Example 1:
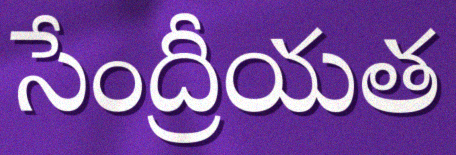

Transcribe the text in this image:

సేంద్రీయత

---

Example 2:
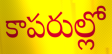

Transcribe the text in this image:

కాపరుల్లో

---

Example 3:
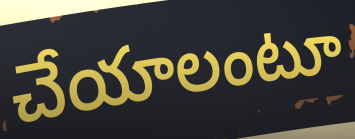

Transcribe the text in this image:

చేయాలంటూ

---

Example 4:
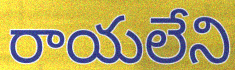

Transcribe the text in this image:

రాయలేని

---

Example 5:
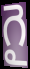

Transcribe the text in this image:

గై